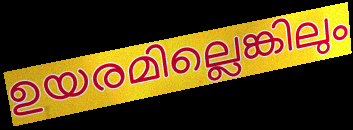
ഉയരമില്ലെങ്കിലും